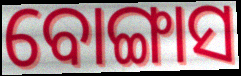
ବୋଙ୍ଗାସ